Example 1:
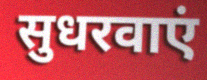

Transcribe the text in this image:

सुधरवाएं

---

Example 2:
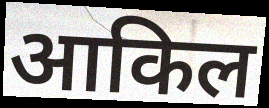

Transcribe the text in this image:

आकिल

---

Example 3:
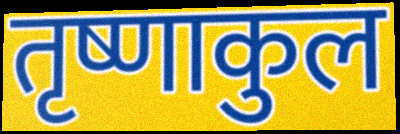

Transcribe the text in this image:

तृष्णाकुल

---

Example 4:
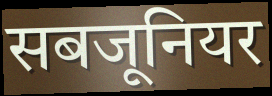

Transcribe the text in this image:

सबजूनियर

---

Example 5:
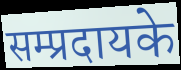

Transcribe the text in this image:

सम्प्रदायके